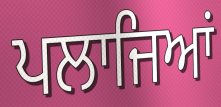
ਪਲਾਜਿਆਂ